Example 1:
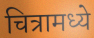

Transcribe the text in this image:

चित्रामध्ये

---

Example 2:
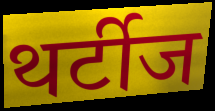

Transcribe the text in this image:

थर्टीज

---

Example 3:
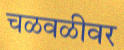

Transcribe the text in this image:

चळवळीवर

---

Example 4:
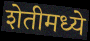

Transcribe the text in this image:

शेतीमध्ये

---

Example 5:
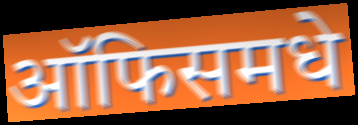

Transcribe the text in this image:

ऑफिसमधे